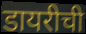
डायरीची